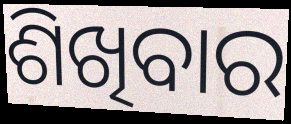
ଶିଖିବାର